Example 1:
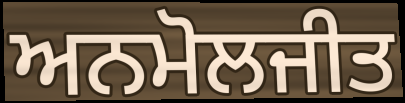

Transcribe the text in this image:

ਅਨਮੋਲਜੀਤ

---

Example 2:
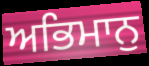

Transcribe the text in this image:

ਅਭਿਮਾਨੁ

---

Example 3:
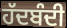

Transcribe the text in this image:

ਹੱਦਬੰਦੀ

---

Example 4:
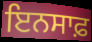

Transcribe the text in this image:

ਇਨਸਾਫ਼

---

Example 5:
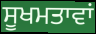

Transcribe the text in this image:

ਸੂਖਮਤਾਵਾਂ